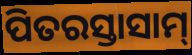
ପିତରସ୍ତାସାମ୍